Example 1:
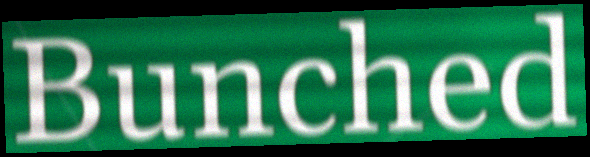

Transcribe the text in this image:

Bunched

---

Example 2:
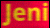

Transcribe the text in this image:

Jeni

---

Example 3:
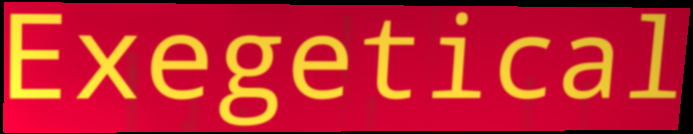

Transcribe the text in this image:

Exegetical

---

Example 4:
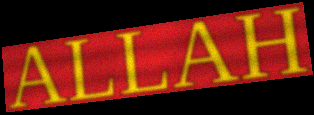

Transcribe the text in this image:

ALLAH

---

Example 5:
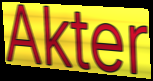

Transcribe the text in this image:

Akter